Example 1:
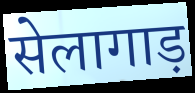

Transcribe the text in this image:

सेलागाड़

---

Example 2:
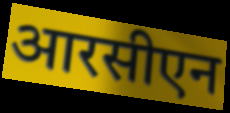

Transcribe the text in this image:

आरसीएन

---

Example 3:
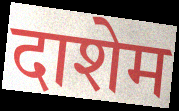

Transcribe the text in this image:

दाशेम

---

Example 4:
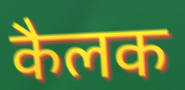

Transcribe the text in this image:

कैलक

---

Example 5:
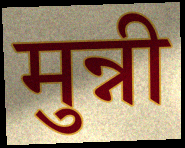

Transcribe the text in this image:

मुन्नी